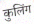
कुलिंग